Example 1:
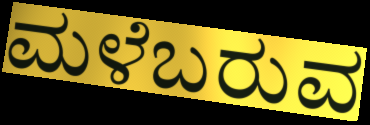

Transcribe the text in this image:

ಮಳೆಬರುವ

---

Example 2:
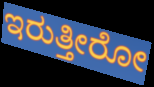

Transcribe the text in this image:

ಇರುತ್ತೀರೋ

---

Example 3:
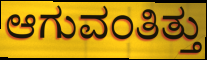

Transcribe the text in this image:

ಆಗುವಂತಿತ್ತು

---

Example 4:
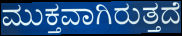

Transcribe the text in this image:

ಮುಕ್ತವಾಗಿರುತ್ತದೆ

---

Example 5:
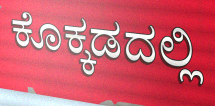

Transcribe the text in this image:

ಕೊಕ್ಕಡದಲ್ಲಿ